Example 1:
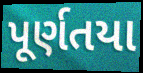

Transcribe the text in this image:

પૂર્ણતયા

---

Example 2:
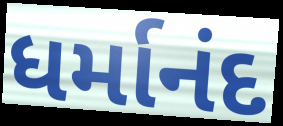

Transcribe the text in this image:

ધર્માનંદ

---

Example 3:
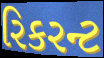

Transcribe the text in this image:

રિકરન્ટ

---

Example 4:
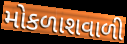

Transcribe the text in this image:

મોકળાશવાળી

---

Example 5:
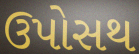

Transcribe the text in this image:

ઉપોસથ